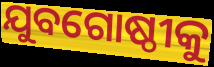
ଯୁବଗୋଷ୍ଠୀକୁ